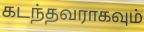
கடந்தவராகவும்